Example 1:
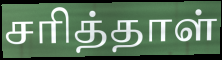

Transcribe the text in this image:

சரித்தாள்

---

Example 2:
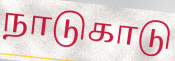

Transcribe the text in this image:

நாடுகாடு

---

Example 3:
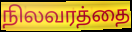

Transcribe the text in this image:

நிலவரத்தை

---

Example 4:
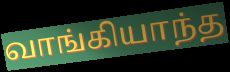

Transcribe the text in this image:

வாங்கியாந்த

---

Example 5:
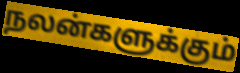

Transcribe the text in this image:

நலன்களுக்கும்